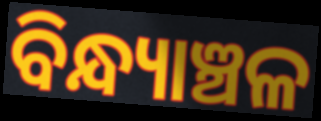
ବିନ୍ଧ୍ୟାଞ୍ଚଳ